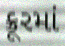
ક્રૂરમાં